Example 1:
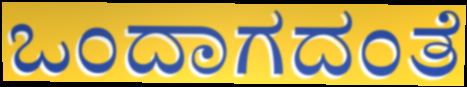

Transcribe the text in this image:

ಒಂದಾಗದಂತೆ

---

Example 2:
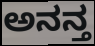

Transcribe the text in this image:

ಅನನ್ತ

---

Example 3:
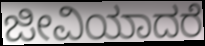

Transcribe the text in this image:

ಜೀವಿಯಾದರೆ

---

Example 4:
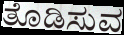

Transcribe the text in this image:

ತೊಡಿಸುವ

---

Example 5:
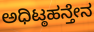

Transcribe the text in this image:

ಅಧಿಟ್ಠಹನ್ತೇನ